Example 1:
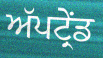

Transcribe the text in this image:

ਅੱਪਟ੍ਰੇਂਡ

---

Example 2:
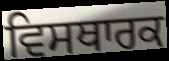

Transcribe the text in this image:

ਵਿਸਥਾਰਕ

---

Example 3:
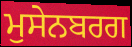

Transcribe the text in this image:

ਮੁਸੇਨਬਰਗ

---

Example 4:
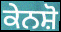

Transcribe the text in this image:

ਕੇਨਸ਼ੋ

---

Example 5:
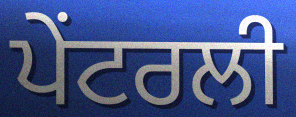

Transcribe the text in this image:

ਪੇਂਟਰਲੀ